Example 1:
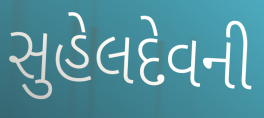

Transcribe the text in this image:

સુહેલદેવની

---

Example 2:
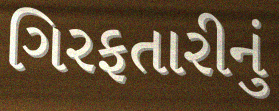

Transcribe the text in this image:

ગિરફતારીનું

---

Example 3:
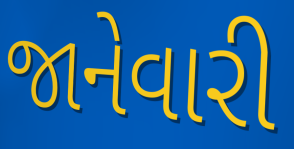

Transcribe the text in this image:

જાનેવારી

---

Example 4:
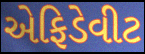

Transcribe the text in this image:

એફિડેવીટ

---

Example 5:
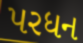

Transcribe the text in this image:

પરધન